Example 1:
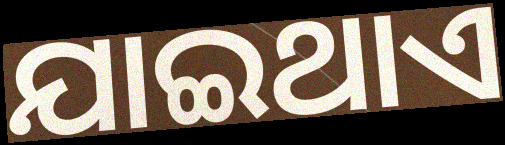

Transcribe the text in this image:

ଯାଇଥାଏ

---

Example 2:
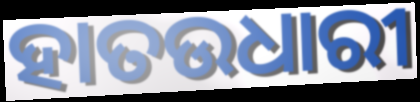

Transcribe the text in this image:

ହାତଉଧାରୀ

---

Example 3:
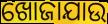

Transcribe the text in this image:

ଖୋଜାଯାଉ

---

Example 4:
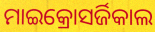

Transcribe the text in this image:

ମାଇକ୍ରୋସର୍ଜିକାଲ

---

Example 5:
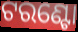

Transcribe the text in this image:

ଟରଣ୍ଟୋ